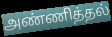
அண்ணித்தல்